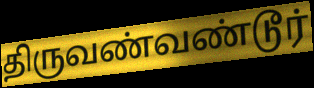
திருவண்வண்டூர்